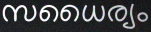
സധൈര്യം